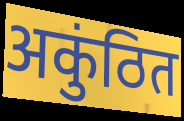
अकुंठित